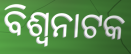
ବିଶ୍ୱନାଟକ